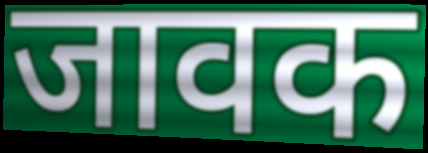
जावक